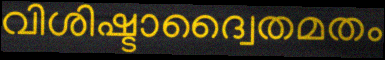
വിശിഷ്ടാദ്വൈതമതം